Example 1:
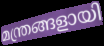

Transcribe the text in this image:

മന്ത്രങ്ങളായി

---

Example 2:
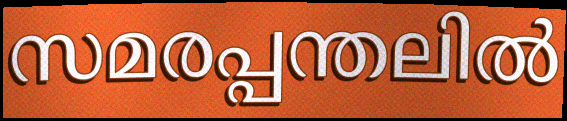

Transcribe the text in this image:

സമരപ്പന്തലിൽ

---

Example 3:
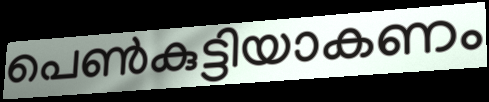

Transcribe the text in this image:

പെൺകുട്ടിയാകണം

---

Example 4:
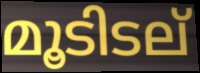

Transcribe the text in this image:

മൂടിടല്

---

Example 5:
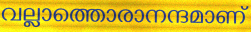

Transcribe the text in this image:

വല്ലാത്തൊരാനന്ദമാണ്